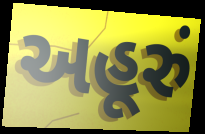
અહૂરું